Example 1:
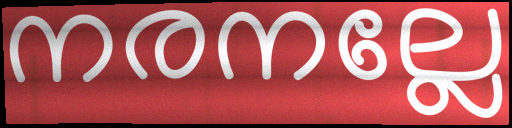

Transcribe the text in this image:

നരനല്ലേ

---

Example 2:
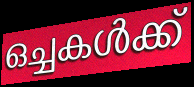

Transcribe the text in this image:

ഒച്ചകൾക്ക്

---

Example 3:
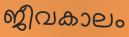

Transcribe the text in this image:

ജീവകാലം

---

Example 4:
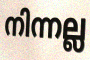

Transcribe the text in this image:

നിന്നല്ല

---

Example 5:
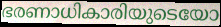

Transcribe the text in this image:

ഭരണാധികാരിയുടെയോ